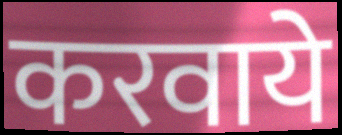
करवाये